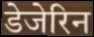
डेजेरिन